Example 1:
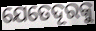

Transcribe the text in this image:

ଯେତେଦୂରକୁ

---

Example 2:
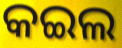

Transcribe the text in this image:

କଇଲ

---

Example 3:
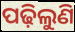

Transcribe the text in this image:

ପଢ଼ିଲୁଣି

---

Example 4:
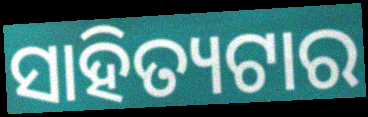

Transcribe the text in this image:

ସାହିତ୍ୟଟାର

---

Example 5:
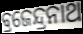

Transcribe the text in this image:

ବ୍ରଜେନ୍ଦ୍ରନାଥ